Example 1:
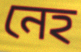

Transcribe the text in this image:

নেহ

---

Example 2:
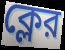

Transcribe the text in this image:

ক্লের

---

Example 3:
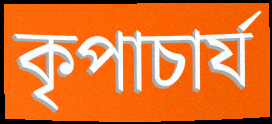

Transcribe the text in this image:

কৃপাচার্য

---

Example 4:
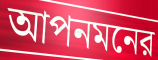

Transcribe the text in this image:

আপনমনের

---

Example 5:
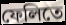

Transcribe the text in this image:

ফেলিতে